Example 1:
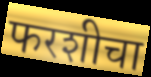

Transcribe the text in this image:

फरशीचा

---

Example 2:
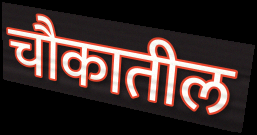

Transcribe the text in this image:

चौकातील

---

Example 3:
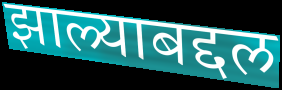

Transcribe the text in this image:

झाल्याबद्दल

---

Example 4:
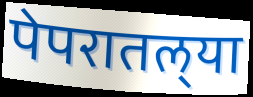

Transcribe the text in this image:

पेपरातल्या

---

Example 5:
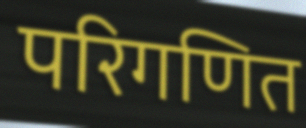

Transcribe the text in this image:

परिगणित